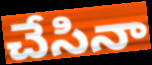
చేసినా